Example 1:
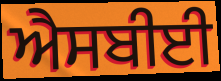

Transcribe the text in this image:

ਐਸਬੀਈ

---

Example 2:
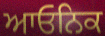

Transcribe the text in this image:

ਆਓਨਿਕ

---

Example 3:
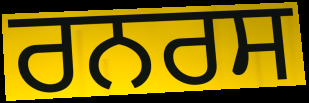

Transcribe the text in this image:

ਰਨਰਸ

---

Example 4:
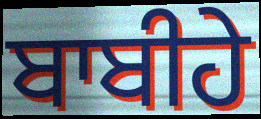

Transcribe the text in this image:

ਬਾਬੀਹੇ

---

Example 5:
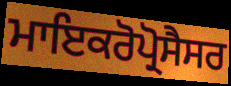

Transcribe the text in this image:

ਮਾਇਕਰੋਪ੍ਰੋਸੈਸਰ